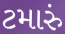
ટમારું